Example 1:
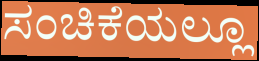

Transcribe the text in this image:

ಸಂಚಿಕೆಯಲ್ಲೂ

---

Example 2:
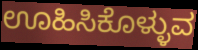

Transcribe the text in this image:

ಊಹಿಸಿಕೊಳ್ಳುವ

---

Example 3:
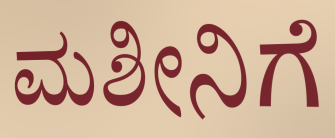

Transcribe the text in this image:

ಮಶೀನಿಗೆ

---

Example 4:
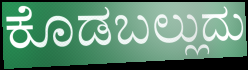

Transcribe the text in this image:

ಕೊಡಬಲ್ಲುದು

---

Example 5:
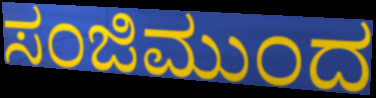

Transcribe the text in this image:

ಸಂಜಿಮುಂದ